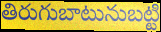
తిరుగుబాటునుబట్టి